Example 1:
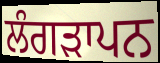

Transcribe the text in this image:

ਲੰਗੜਾਪਨ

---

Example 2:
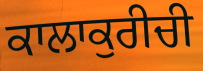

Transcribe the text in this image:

ਕਾਲਾਕੁਰੀਚੀ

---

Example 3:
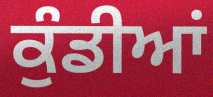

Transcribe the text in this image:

ਕੁੰਡੀਆਂ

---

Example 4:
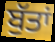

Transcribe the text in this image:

ਬੁੱਤਾਂ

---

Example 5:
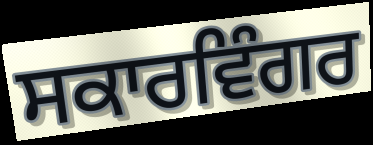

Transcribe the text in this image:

ਸਕਾਰਵਿੰਗਰ